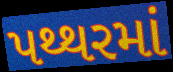
પથ્થરમાં